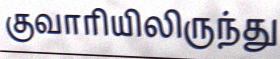
குவாரியிலிருந்து